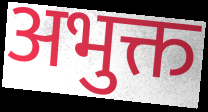
अभुक्त